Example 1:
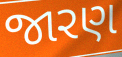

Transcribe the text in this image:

જારણ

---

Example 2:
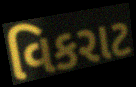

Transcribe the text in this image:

વિકરાટ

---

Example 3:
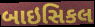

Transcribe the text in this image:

બાઇસિકલ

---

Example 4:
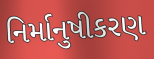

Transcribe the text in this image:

નિર્માનુષીકરણ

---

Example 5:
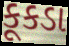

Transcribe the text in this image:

કૂકડા